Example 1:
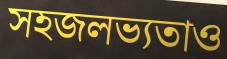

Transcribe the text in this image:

সহজলভ্যতাও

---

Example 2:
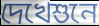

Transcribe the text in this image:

দেখেশুনে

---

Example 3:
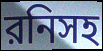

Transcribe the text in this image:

রনিসহ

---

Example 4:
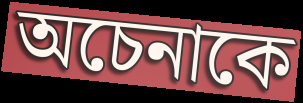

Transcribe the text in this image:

অচেনাকে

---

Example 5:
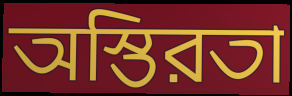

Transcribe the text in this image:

অস্তিরতা